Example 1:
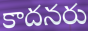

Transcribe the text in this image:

కాదనరు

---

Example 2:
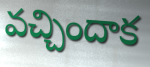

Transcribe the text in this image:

వచ్చిందాక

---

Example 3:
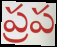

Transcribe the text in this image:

ప్రప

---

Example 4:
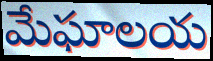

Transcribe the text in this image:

మేఘాలయ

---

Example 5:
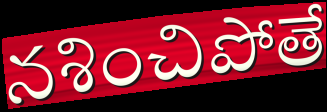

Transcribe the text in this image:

నశించిపోతే